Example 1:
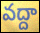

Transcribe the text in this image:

వద్దా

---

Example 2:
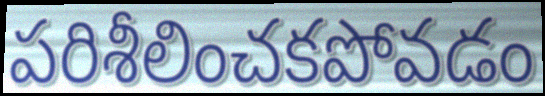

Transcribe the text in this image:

పరిశీలించకపోవడం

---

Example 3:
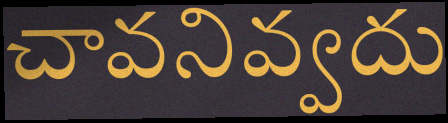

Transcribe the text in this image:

చావనివ్వదు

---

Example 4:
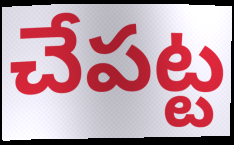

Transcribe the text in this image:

చేపట్ట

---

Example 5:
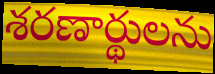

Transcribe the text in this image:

శరణార్థులను